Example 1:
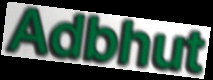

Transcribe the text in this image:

Adbhut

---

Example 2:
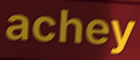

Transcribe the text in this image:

achey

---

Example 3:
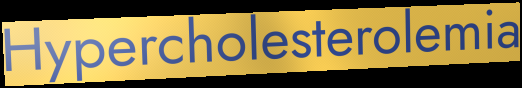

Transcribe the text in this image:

Hypercholesterolemia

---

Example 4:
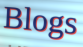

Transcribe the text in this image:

Blogs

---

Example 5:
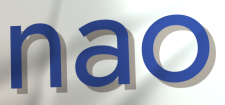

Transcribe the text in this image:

nao